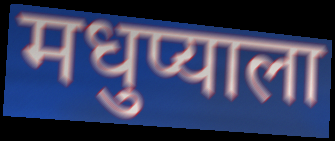
मधुप्याला